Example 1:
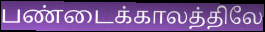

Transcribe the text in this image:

பண்டைக்காலத்திலே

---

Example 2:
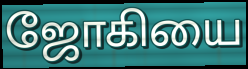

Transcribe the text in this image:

ஜோகியை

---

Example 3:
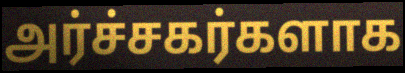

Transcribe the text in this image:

அர்ச்சகர்களாக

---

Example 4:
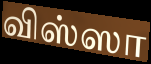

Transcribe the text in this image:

விஸ்ஸா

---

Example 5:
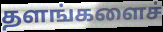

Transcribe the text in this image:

தளங்களைச்